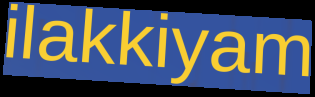
ilakkiyam